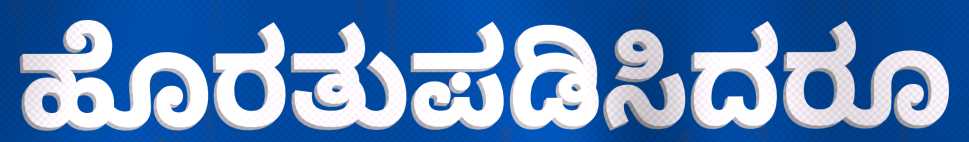
ಹೊರತುಪಡಿಸಿದರೂ